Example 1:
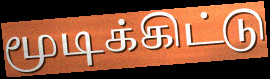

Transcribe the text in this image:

மூடிக்கிட்டு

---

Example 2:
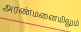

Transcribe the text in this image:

அரண்மனையிலும்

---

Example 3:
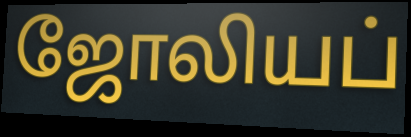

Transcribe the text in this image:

ஜோலியப்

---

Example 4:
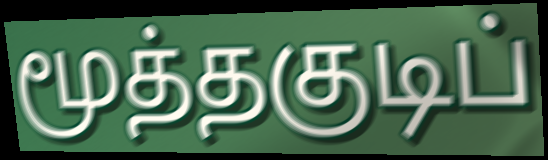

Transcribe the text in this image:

மூத்தகுடிப்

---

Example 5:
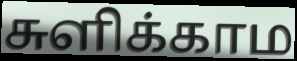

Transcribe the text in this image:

சுளிக்காம